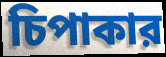
চিপাকার